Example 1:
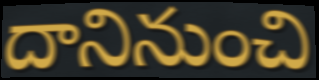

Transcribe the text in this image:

దానినుంచి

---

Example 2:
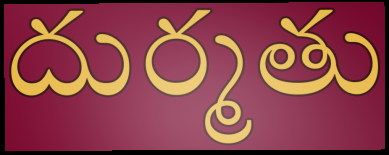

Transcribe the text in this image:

దుర్మతు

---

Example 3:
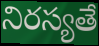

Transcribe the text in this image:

నిరస్యతే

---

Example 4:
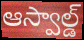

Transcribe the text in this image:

ఆస్వాల్డ్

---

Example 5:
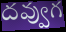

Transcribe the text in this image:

దవ్వుగ